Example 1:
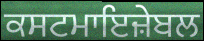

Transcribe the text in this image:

ਕਸਟਮਾਇਜ਼ੇਬਲ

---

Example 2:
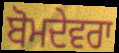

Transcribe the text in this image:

ਬੋਮਦੇਵਰਾ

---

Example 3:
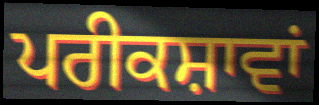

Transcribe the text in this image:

ਪਰੀਕਸ਼ਾਵਾਂ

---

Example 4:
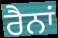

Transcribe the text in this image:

ਰੈਨਾਂ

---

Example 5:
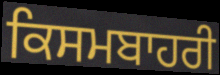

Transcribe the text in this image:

ਕਿਸਮਬਾਹਰੀ